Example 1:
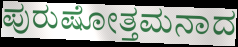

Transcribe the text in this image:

ಪುರುಷೋತ್ತಮನಾದ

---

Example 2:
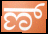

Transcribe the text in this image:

ಣ್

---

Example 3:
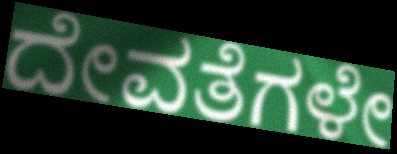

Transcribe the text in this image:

ದೇವತೆಗಳೇ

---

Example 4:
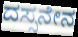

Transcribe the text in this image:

ದಸ್ಸನೇನ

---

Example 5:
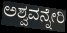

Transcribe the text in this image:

ಅಶ್ವವನ್ನೇರಿ